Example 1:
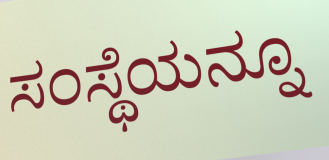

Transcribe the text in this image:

ಸಂಸ್ಥೆಯನ್ನೂ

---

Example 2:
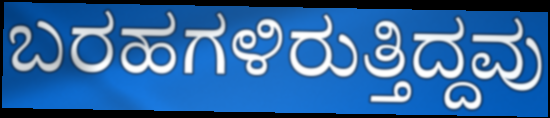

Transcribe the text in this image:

ಬರಹಗಳಿರುತ್ತಿದ್ದವು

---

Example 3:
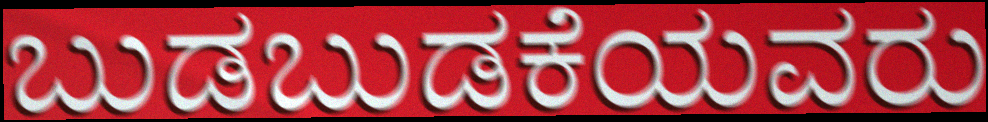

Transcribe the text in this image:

ಬುಡಬುಡಕೆಯವರು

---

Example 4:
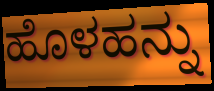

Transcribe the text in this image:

ಹೊಳಹನ್ನು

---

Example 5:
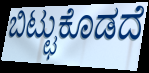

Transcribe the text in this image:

ಬಿಟ್ಟುಕೊಡದೆ